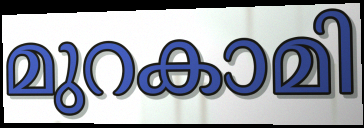
മുറകാമി